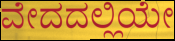
ವೇದದಲ್ಲಿಯೇ